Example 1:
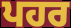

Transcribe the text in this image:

ਪਹਰ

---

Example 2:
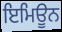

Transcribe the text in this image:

ਇਮਿਊਨ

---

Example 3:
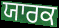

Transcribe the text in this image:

ਯਾਰਕ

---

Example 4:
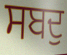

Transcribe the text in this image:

ਸਬਦੁ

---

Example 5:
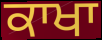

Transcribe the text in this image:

ਕਾਖਾ